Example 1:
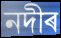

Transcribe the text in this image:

নদীৰ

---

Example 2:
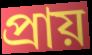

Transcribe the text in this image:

প্ৰায়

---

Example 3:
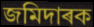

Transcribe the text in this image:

জমিদাৰক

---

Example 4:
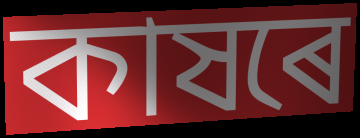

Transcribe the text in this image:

কাষৰে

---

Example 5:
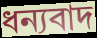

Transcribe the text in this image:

ধন্যবাদ